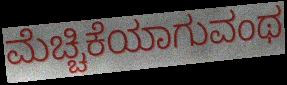
ಮೆಚ್ಚಿಕೆಯಾಗುವಂಥ